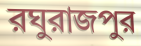
রঘুরাজপুর